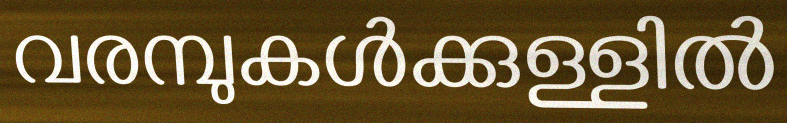
വരമ്പുകൾക്കുള്ളിൽ